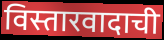
विस्तारवादाची